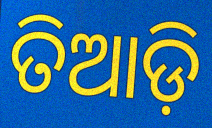
ତିଆଡ଼ି